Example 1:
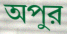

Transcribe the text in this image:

অপুর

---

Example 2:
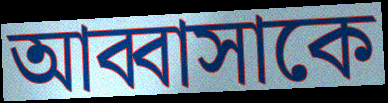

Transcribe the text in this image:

আব্বাসাকে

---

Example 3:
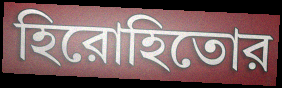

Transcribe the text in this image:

হিরোহিতোর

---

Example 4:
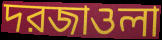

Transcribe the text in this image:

দরজাওলা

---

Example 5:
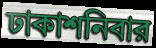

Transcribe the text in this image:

ঢাকাশনিবার